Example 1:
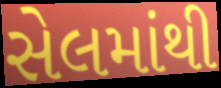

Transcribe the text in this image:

સેલમાંથી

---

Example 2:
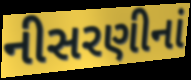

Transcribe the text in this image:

નીસરણીનાં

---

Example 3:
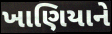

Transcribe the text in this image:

ખાણિયાને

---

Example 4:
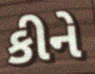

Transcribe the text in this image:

કીને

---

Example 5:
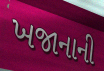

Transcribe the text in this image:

ખજાનાની